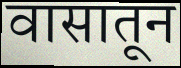
वासातून